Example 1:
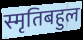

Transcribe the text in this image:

स्मृतिबहुल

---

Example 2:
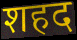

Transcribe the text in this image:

शहद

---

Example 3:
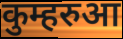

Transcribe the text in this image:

कुम्हरुआ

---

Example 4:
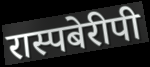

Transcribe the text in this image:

रास्पबेरीपी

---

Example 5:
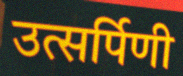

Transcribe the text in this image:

उत्सर्पिणी